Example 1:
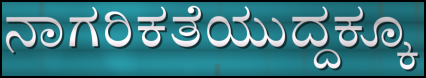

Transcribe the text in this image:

ನಾಗರಿಕತೆಯುದ್ದಕ್ಕೂ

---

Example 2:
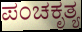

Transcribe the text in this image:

ಪಂಚಕೃತ್ಯ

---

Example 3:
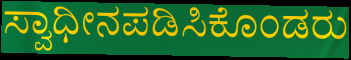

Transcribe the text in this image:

ಸ್ವಾಧೀನಪಡಿಸಿಕೊಂಡರು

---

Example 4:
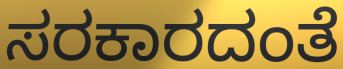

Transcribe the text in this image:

ಸರಕಾರದಂತೆ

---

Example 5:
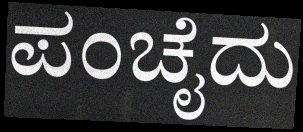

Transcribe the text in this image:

ಪಂಚೈದು